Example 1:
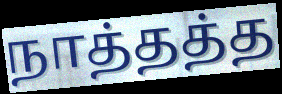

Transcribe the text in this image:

நாத்தத்த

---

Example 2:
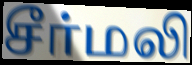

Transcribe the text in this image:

சீர்மலி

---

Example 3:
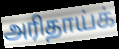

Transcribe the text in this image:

அரிதாய்க்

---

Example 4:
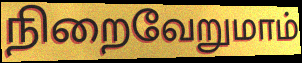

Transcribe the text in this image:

நிறைவேறுமாம்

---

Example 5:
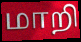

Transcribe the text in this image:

மாறி